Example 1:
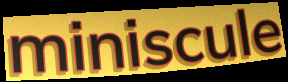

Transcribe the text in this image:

miniscule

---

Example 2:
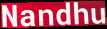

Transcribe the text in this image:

Nandhu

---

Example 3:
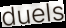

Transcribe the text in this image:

duels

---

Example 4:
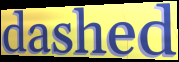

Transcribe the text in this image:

dashed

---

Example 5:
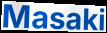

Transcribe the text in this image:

Masaki